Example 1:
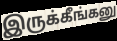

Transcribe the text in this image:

இருக்கீங்கனு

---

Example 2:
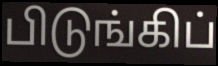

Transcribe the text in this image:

பிடுங்கிப்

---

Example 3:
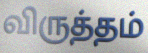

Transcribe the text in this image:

விருத்தம்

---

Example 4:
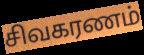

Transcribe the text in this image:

சிவகரணம்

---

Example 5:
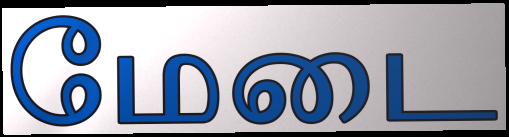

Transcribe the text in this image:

மேடை